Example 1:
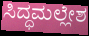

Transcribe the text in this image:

ಸಿದ್ಧಮಲ್ಲೇಶ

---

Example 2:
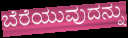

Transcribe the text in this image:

ಬೆರೆಯುವುದನ್ನು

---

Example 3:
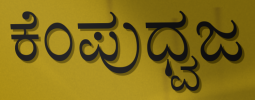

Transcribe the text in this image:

ಕೆಂಪುಧ್ವಜ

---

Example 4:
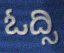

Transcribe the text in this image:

ಓದ್ಸಿ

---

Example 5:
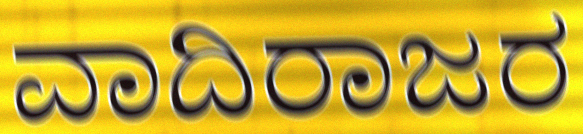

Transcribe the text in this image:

ವಾದಿರಾಜರ